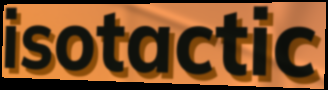
isotactic